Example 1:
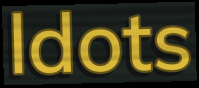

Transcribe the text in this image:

ldots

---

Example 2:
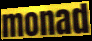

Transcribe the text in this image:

monad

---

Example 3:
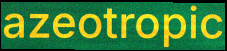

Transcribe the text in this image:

azeotropic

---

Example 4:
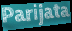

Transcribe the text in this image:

Parijata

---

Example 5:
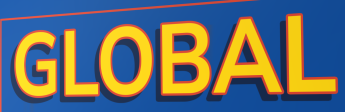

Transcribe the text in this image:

GLOBAL